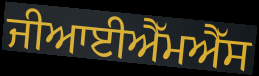
ਜੀਆਈਐੱਮਐੱਸ